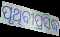
ପୃଥିବୀପ୍ରସିଦ୍ଧ